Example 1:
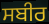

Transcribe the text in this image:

ਸਬੀਰ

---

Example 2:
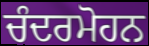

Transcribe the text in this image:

ਚੰਦਰਮੋਹਨ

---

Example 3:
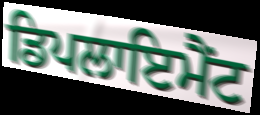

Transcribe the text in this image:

ਡਿਪਲਾਇਮੈਂਟ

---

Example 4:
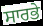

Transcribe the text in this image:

ਸਾਰਭੇ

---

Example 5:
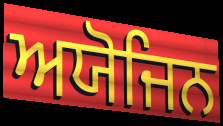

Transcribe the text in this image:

ਅਯੋਜਿਨ